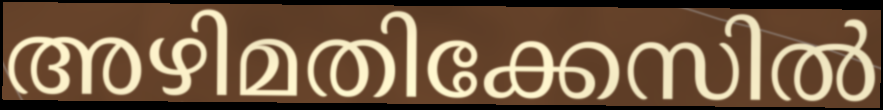
അഴിമതിക്കേസിൽ